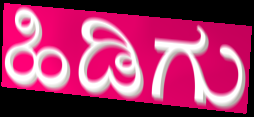
ಹಿಡಿಗು